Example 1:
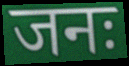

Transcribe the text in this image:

जनः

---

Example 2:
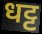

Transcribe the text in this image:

धट्ट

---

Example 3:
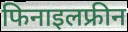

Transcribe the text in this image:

फिनाइलफ्रीन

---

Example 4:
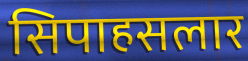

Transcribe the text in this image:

सिपाहसलार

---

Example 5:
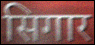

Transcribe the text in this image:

सिगार